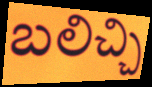
బలిచ్చి